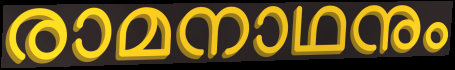
രാമനാഥനും